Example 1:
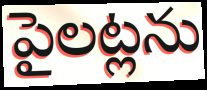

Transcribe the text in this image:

పైలట్లను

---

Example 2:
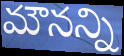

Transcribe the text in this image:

మౌనన్ని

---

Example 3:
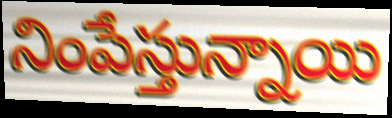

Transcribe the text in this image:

నింపేస్తున్నాయి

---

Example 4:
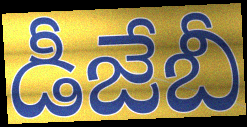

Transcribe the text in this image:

డీజేబీ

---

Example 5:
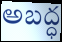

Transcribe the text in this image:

అబద్ధ